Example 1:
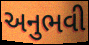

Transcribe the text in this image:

અનુભવી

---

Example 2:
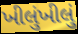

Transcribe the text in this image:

ખીલુંખીલું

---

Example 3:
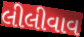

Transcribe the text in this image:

લીલીવાવ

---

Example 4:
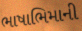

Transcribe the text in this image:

ભાષાભિમાની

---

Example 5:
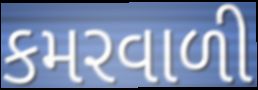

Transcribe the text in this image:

કમરવાળી